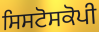
ਸਿਸਟੋਸਕੋਪੀ